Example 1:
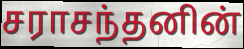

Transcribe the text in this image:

சராசந்தனின்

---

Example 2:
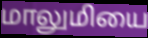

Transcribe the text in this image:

மாலுமியை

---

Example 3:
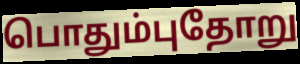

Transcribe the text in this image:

பொதும்புதோறு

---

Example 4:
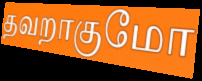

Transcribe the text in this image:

தவறாகுமோ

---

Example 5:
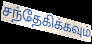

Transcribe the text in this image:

சந்தேகிக்கவும்